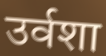
उर्वशा